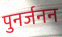
पुनर्जनन